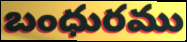
బంధురము